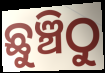
ଛୁଞ୍ଚିଠୁ